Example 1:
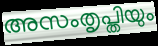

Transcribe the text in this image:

അസംതൃപ്തിയും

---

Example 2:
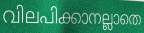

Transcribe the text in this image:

വിലപിക്കാനല്ലാതെ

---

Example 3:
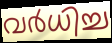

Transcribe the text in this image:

വർധിച്ച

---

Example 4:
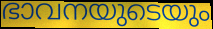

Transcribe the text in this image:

ഭാവനയുടെയും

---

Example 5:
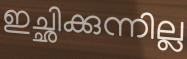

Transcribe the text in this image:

ഇച്ഛിക്കുന്നില്ല